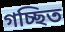
গচ্ছিত